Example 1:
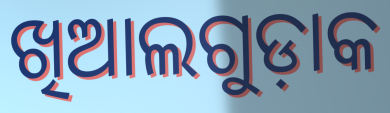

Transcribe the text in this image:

ଖିଆଲଗୁଡ଼ାକ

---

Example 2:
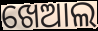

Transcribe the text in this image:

ଖେଆଲ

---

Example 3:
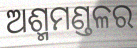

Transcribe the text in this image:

ଅଶ୍ମମଣ୍ଡଳର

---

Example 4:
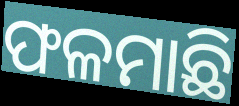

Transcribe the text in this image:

ଫଳମାଛି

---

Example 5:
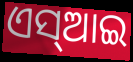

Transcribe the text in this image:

ଏସ୍ଆଇ